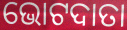
ଭୋଟଦାତା